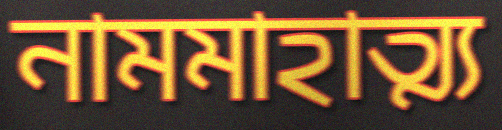
নামমাহাত্ম্য